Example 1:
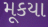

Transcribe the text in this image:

મૂકયા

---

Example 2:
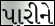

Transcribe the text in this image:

પારીને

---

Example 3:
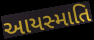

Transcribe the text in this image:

આયસ્માતિ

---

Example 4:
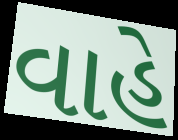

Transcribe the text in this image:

વાહે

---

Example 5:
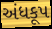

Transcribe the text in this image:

અંધકૂપ